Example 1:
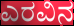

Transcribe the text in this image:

ಎರವಿನ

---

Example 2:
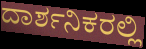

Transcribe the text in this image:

ದಾರ್ಶನಿಕರಲ್ಲಿ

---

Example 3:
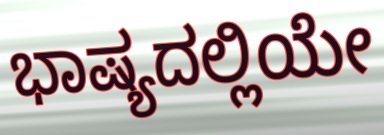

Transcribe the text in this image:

ಭಾಷ್ಯದಲ್ಲಿಯೇ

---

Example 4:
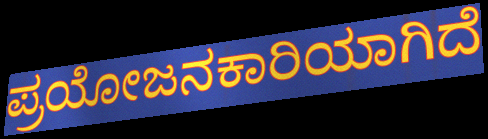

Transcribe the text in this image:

ಪ್ರಯೋಜನಕಾರಿಯಾಗಿದೆ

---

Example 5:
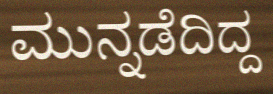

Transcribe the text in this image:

ಮುನ್ನಡೆದಿದ್ದ